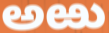
ಅಱು